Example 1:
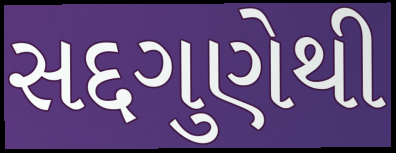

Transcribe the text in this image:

સદ્દગુણેથી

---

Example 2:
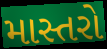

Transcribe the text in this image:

માસ્તરો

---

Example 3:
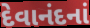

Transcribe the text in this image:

દેવાનંદનાં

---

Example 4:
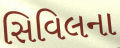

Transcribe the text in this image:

સિવિલના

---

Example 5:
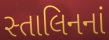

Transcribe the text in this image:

સ્તાલિનનાં